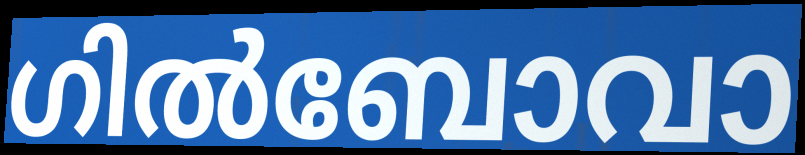
ഗിൽബോവാ